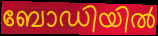
ബോഡിയിൽ